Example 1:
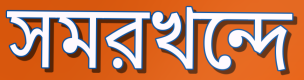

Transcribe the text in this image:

সমরখন্দে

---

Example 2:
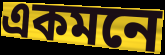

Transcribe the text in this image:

একমনে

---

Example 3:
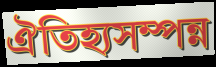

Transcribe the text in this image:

ঐতিহ্যসম্পন্ন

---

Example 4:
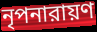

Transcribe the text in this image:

নৃপনারায়ণ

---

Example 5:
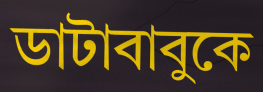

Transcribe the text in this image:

ডাটাবাবুকে